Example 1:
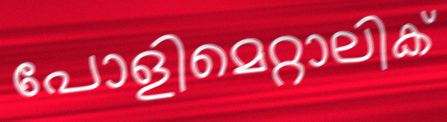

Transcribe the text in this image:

പോളിമെറ്റാലിക്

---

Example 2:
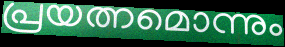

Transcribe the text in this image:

പ്രയത്നമൊന്നും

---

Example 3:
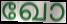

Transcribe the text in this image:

ഖോ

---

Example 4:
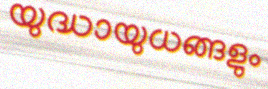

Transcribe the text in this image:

യുദ്ധായുധങ്ങളും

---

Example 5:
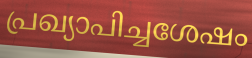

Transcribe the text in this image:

പ്രഖ്യാപിച്ചശേഷം